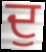
ਦੁ